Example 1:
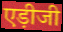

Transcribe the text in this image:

एड़ीजी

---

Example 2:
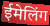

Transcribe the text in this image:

ईमेलिंग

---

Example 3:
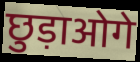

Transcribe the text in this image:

छुड़ाओगे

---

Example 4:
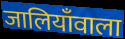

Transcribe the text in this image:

जालियाँवाला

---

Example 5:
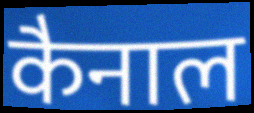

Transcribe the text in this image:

कैनाल